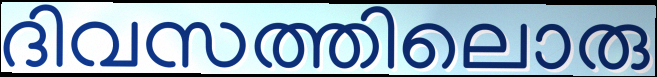
ദിവസത്തിലൊരു